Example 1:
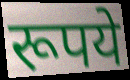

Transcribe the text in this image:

रूपये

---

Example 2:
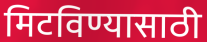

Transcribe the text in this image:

मिटविण्यासाठी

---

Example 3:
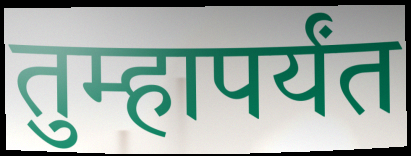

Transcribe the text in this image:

तुम्हापर्यंत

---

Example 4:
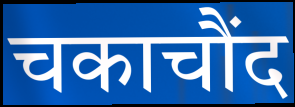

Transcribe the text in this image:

चकाचौंद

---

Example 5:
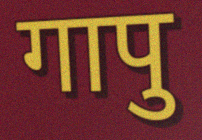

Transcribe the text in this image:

गापु